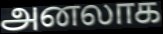
அனலாக